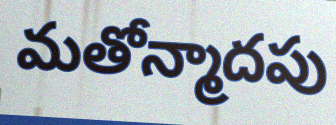
మతోన్మాదపు